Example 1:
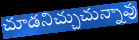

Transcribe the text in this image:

చూడనిచ్చుచున్నావు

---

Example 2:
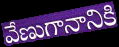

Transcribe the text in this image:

వేణుగానానికి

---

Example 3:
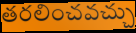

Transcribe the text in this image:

తరలించవచ్చు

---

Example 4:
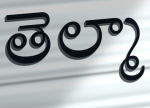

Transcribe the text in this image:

తెల్మా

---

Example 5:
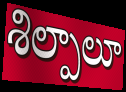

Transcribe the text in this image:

శిల్పాలూ